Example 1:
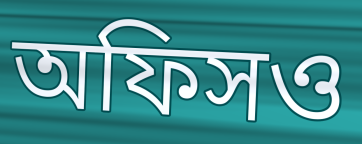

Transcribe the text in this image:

অফিসও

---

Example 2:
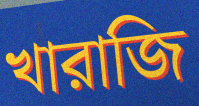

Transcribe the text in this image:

খারাজি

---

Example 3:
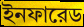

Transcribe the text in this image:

ইনফারেড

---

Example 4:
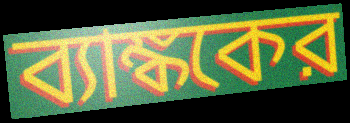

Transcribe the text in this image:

ব্যাঙ্ককের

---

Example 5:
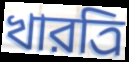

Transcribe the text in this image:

খারত্রি